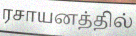
ரசாயனத்தில்